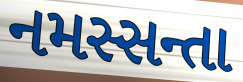
નમસ્સન્તા